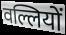
वल्लियों